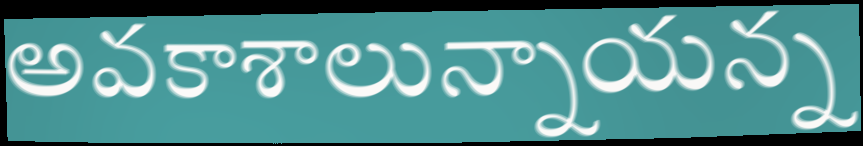
అవకాశాలున్నాయన్న